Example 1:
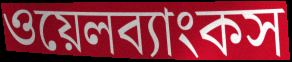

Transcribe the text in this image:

ওয়েলব্যাংকস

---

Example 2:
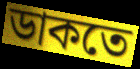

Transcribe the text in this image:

ডাকতে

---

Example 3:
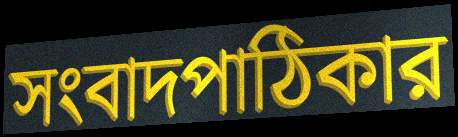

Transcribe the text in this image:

সংবাদপাঠিকার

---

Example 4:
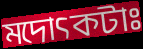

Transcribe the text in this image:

মদোৎকটাঃ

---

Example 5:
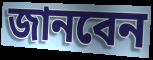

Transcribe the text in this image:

জানবেন